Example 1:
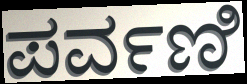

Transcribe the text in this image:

ಪರ್ವಣಿ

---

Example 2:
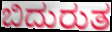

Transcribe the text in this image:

ಬಿದುರುತ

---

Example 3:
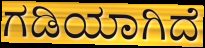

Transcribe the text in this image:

ಗಡಿಯಾಗಿದೆ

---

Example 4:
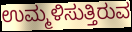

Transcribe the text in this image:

ಉಮ್ಮಳಿಸುತ್ತಿರುವ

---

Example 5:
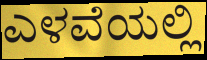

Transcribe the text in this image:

ಎಳವೆಯಲ್ಲಿ